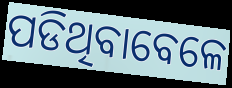
ପଡିଥିବାବେଳେ